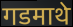
गडमाथे